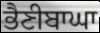
ਭੈਣੀਬਾਘਾ